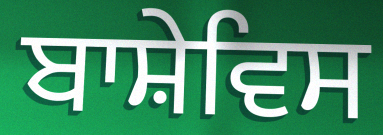
ਬਾਸ਼ੇਵਿਸ